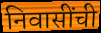
निवासींची